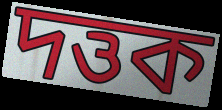
দত্তক